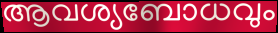
ആവശ്യബോധവും